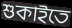
শুকাইতে